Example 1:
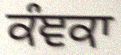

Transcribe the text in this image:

ਕੰਞਕਾ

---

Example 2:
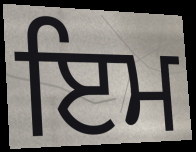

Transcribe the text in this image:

ਇਮ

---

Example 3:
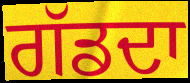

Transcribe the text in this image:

ਗੱਡਦਾ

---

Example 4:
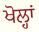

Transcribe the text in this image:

ਖੋਲ੍ਹਾਂ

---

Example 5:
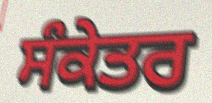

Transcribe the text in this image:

ਸੰਕੇਤਰ